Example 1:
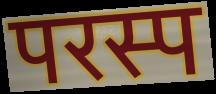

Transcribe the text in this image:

परस्प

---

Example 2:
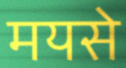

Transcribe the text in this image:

मयसे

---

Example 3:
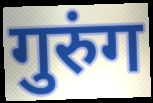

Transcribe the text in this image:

गुरुंग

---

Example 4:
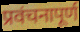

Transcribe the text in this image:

प्रवंचनापूर्ण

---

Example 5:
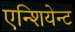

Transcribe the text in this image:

एन्शियेन्ट